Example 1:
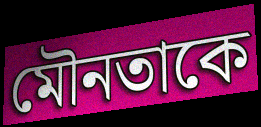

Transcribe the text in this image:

মৌনতাকে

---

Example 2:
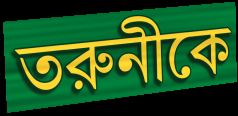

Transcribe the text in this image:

তরুনীকে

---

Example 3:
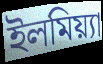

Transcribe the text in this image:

ইলমিয়্যা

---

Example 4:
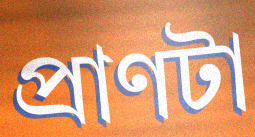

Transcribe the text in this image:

প্রাণটা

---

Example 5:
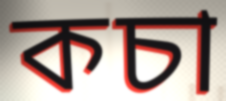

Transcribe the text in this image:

কচা